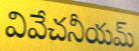
వివేచనీయమ్